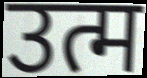
उत्म